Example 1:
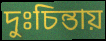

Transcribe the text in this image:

দুঃচিন্তায়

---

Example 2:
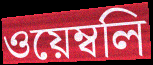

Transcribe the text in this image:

ওয়েম্বলি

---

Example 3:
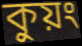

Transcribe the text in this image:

কুয়ং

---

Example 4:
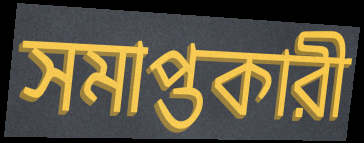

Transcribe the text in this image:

সমাপ্তকারী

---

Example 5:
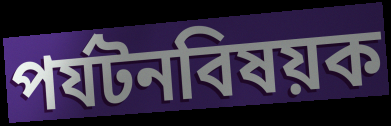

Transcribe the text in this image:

পর্যটনবিষয়ক